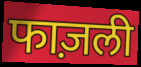
फाज़ली